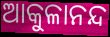
ଆକୁଳାନନ୍ଦ